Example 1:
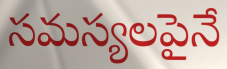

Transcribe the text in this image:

సమస్యలపైనే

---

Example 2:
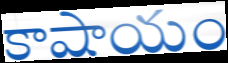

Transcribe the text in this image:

కాషాయం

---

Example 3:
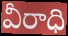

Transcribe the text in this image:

వీరాధి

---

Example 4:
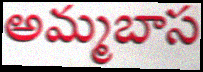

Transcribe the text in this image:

అమ్మబాస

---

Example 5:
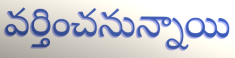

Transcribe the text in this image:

వర్తించనున్నాయి